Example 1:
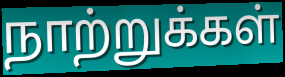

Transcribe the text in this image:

நாற்றுக்கள்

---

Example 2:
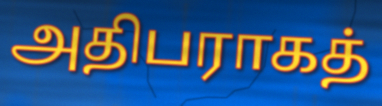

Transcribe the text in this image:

அதிபராகத்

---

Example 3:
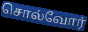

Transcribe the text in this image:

சொல்வோர்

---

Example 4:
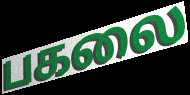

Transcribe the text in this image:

பகலை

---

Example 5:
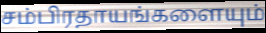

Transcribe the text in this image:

சம்பிரதாயங்களையும்